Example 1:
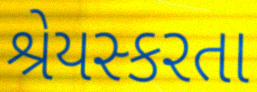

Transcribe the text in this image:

શ્રેયસ્કરતા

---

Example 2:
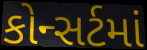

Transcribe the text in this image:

કોન્સર્ટમાં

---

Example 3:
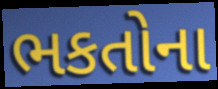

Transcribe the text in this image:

ભકતોના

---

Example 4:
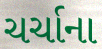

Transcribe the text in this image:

ચર્ચાના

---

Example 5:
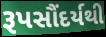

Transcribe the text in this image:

રૂપસૌંદર્યથી